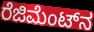
ರೆಜಿಮೆಂಟ್‌ನ